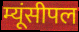
म्यूंसीपल